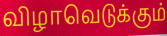
விழாவெடுக்கும்